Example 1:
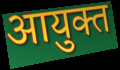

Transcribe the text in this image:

आयुक्‍त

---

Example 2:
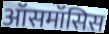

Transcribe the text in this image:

ऑसमॉसिस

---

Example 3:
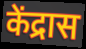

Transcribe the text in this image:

केंद्रास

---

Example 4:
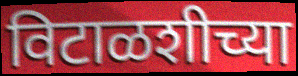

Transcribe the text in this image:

विटाळशीच्या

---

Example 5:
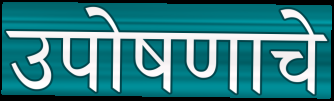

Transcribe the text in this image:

उपोषणाचे